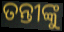
ତନ୍ତୀଙ୍କୁ